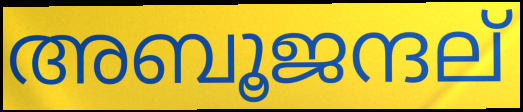
അബൂജന്ദല്